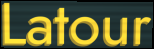
Latour